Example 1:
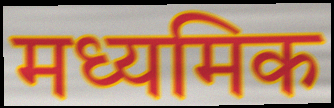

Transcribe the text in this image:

मध्यमिक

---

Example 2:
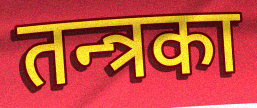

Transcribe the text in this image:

तन्त्रका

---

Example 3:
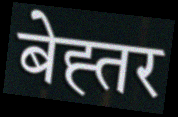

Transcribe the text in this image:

बेह्तर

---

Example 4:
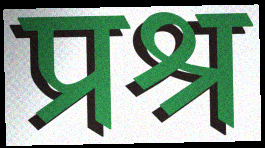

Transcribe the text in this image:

प्रश्र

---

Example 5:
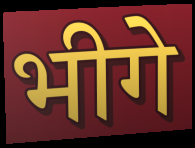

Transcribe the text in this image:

भीगे